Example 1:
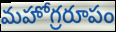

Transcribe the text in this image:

మహోగ్రరూపం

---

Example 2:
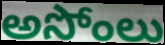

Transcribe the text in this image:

అసోంలు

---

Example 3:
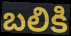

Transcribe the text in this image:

బలికి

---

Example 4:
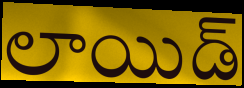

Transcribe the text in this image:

లాయిడ్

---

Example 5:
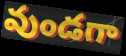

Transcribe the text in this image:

వుండగా